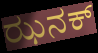
ಝನಕ್